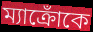
ম্যাক্রোঁকে